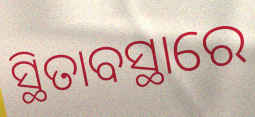
ସ୍ଥିତାବସ୍ଥାରେ